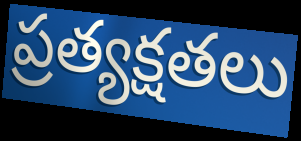
ప్రత్యక్షతలు